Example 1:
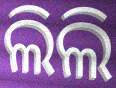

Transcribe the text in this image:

ଲିଲି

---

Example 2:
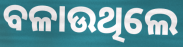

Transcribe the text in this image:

ବଳାଉଥିଲେ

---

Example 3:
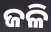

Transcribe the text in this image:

ଜଳି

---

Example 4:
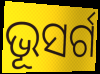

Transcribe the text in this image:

ଭୂସର୍ଗ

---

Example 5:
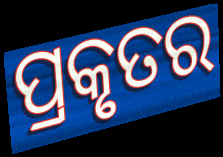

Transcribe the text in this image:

ପ୍ରକୃତର